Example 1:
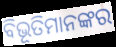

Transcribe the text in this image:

ବିଭୂତିମାନଙ୍କର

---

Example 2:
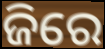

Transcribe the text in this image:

ଜିରେ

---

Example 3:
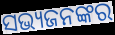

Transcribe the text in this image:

ସଭ୍ୟଜନଙ୍କର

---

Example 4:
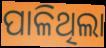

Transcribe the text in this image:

ପାଳିଥିଲା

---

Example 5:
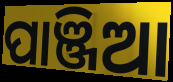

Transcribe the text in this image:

ପାଞ୍ଜିଆ